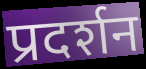
प्रदर्शन